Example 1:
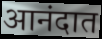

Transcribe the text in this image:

आनंदात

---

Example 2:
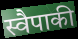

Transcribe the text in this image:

स्वैपाकी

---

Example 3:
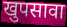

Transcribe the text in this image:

खुपसावा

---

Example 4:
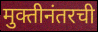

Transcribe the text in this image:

मुक्तीनंतरची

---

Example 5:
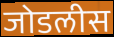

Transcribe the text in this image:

जोडलीस